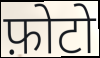
फ़ोटो